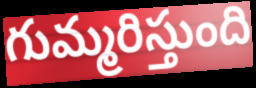
గుమ్మరిస్తుంది